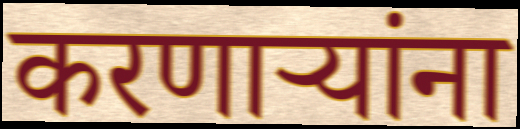
करणाऱ्यांना